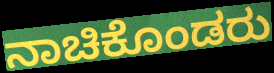
ನಾಚಿಕೊಂಡರು